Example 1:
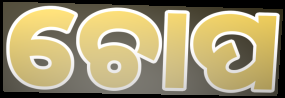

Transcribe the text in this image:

ଚୋପ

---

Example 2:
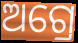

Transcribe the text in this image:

ଅଗ୍ରେ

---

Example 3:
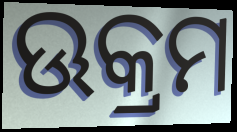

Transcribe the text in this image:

ଊକ୍ରମ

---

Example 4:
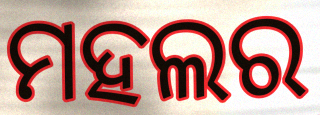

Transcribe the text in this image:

ମହଲର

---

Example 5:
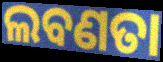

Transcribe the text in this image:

ଲବଣତା